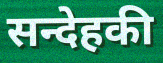
सन्देहकी